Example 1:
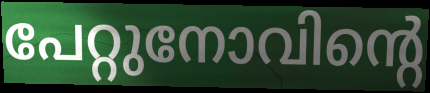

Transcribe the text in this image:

പേറ്റുനോവിന്റെ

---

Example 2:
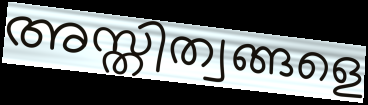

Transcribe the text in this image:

അസ്തിത്വങ്ങളെ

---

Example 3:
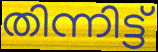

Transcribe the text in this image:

തിന്നിട്ട്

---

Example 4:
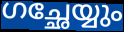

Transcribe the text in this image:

ഗച്ഛേയ്യും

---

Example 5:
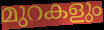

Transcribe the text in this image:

മുറകളും